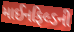
માઈનફિલ્ડની